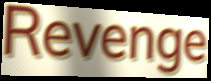
Revenge